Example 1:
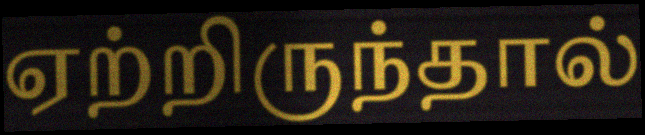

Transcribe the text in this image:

ஏற்றிருந்தால்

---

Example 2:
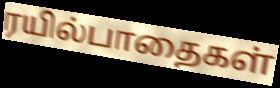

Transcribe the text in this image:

ரயில்பாதைகள்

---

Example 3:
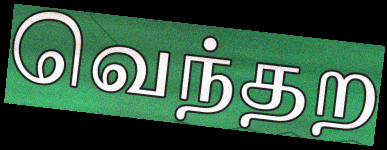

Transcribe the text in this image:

வெந்தற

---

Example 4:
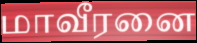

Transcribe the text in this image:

மாவீரனை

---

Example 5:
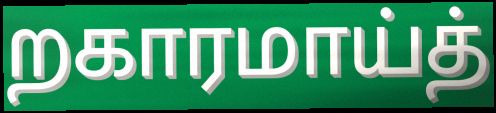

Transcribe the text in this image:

றகாரமாய்த்